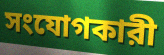
সংযোগকারী